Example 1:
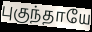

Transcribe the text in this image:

புகுந்தாயே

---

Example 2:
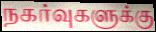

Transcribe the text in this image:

நகர்வுகளுக்கு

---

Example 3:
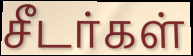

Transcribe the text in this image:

சீடர்கள்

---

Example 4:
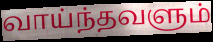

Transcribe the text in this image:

வாய்ந்தவளும்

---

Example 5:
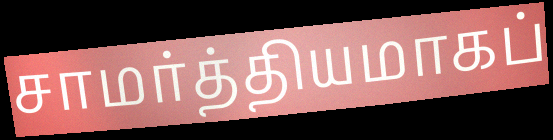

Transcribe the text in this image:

சாமர்த்தியமாகப்